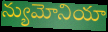
న్యుమోనియా